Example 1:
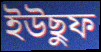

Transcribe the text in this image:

ইউছুফ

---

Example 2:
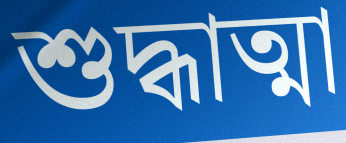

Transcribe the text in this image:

শুদ্ধাত্মা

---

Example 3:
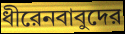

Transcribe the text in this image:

ধীরেনবাবুদের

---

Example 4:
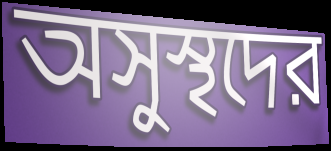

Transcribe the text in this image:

অসুস্থদের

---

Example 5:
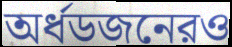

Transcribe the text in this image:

অর্ধডজনেরও